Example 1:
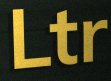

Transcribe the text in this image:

Ltr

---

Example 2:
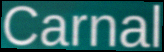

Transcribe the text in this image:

Carnal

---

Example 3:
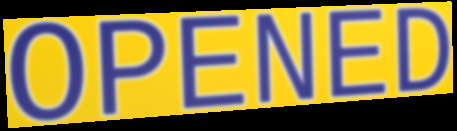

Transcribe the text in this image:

OPENED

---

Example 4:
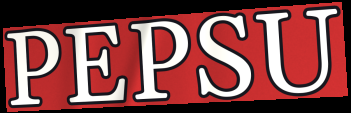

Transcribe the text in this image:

PEPSU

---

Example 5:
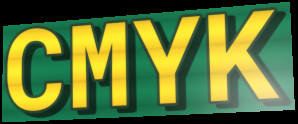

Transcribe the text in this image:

CMYK